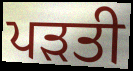
ਪੜਤੀ